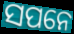
ସପନେ